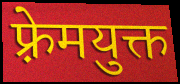
फ़्रेमयुक्त